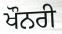
ਖੌਨਰੀ